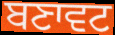
ਬਣਾਵਟ